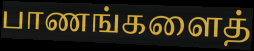
பாணங்களைத்